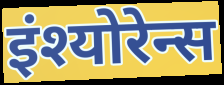
इंश्योरेन्स